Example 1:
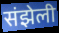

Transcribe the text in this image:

संझेली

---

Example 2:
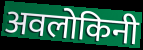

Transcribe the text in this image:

अवलोकिनी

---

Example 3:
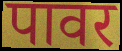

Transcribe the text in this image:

पावर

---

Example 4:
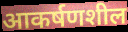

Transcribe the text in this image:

आकर्षणशील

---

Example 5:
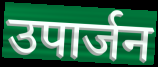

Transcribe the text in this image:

उपार्जन